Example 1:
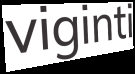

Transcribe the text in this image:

viginti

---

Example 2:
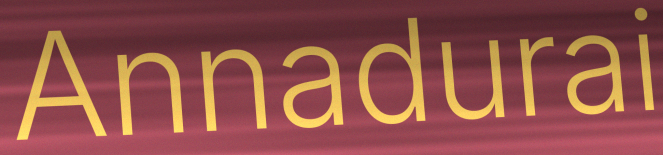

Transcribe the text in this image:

Annadurai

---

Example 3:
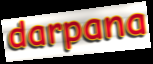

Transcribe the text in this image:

darpana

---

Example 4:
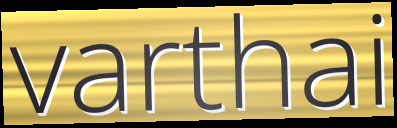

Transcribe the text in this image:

varthai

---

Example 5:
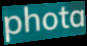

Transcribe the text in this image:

phota